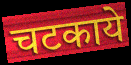
चटकाये